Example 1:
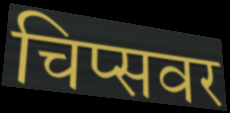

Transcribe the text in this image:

चिप्सवर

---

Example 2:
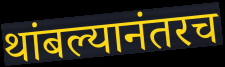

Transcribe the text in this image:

थांबल्यानंतरच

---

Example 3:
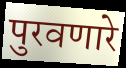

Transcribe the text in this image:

पुरवणारे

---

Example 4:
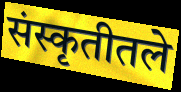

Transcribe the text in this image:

संस्कृतीतले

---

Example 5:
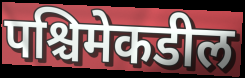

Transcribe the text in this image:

पश्चिमेकडील